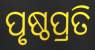
ପୃଷ୍ଠପ୍ରତି